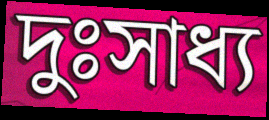
দুঃসাধ্য